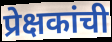
प्रेक्षकांची